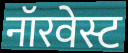
नॉरवेस्ट